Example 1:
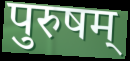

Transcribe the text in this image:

पुरुषम्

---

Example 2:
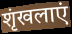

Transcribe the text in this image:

शृंखलाएं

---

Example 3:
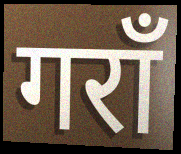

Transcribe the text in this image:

गराँ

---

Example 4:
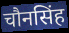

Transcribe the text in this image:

चौनसिंह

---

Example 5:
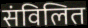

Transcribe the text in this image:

संविलित